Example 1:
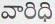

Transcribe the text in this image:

వారిధి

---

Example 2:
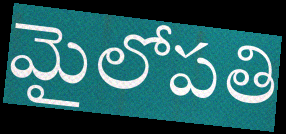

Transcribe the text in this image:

మైలోపతి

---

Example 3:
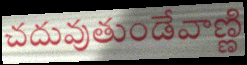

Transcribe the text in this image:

చదువుతుండేవాణ్ణి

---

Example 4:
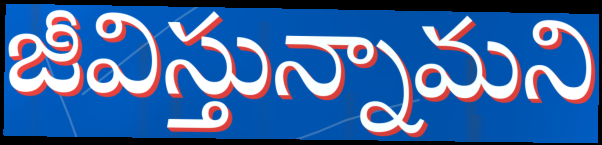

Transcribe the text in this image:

జీవిస్తున్నామని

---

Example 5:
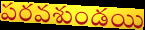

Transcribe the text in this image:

పరవశుండయి